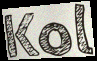
Kol